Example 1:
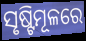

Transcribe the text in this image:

ସୃଷ୍ଟିମୂଳରେ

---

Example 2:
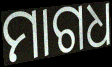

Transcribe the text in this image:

ମାଗଧ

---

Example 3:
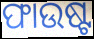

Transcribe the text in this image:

ଫାଉଷ୍ଟ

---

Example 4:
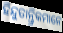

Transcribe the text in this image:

ହିନ୍ଦୁତାନ୍ତ୍ରିକମାନେ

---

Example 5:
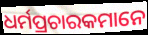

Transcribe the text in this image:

ଧର୍ମପ୍ରଚାରକମାନେ